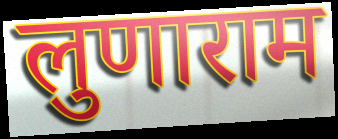
लुणाराम